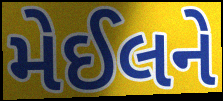
મેઈલને